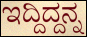
ಇದ್ದಿದ್ದನ್ನ